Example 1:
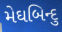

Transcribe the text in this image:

મેઘબિન્દુ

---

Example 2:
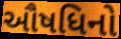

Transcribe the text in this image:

ઔષધિનો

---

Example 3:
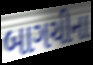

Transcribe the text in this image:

બાગચીના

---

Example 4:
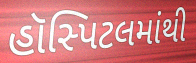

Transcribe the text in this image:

હૉસ્પિટલમાંથી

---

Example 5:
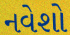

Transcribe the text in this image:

નવેશો